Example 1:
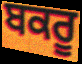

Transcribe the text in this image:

ਬਕਰੂ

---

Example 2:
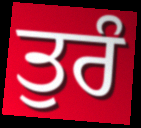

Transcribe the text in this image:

ਤੁਰੰ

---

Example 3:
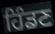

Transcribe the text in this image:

ਹਿੰਡਣ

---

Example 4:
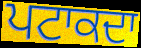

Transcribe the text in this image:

ਪਟਾਕਦਾ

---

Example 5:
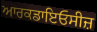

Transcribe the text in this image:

ਆਰਕਡਾਇਓਸੀਜ਼